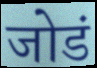
जोडं